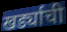
खर्ड्याची